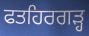
ਫਤਹਿਰਗੜ੍ਹ